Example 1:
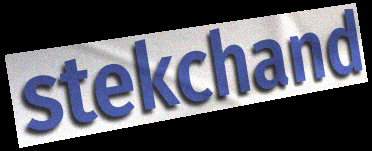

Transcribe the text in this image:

stekchand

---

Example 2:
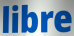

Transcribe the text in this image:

libre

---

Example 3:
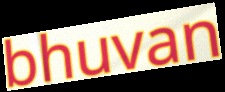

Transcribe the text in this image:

bhuvan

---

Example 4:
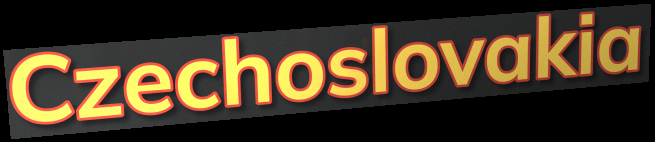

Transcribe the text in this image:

Czechoslovakia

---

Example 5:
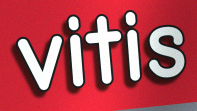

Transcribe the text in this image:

vitis